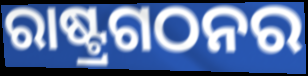
ରାଷ୍ଟ୍ରଗଠନର